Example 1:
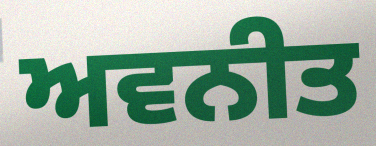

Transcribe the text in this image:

ਅਵਨੀਤ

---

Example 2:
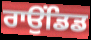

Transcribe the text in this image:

ਰਾਉਂਡਿਡ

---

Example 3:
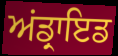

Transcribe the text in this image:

ਅਂਡ੍ਰਾਇਡ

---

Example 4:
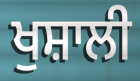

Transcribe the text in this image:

ਖੁਸ਼ਾਲੀ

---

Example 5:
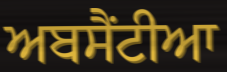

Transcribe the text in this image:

ਅਬਸੈਂਟੀਆ